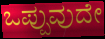
ಒಪ್ಪುವುದೇ